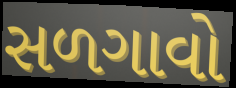
સળગાવો